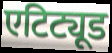
एटिट्यूड